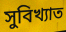
সুবিখ্যাত